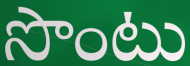
సొంటు